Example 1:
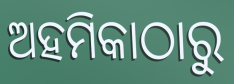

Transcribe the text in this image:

ଅହମିକାଠାରୁ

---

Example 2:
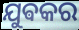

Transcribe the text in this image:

ଯୁଵକର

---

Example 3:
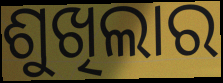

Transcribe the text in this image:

ଶୁଖିଲାର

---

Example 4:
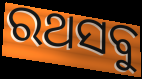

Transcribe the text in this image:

ରଥସବୁ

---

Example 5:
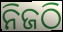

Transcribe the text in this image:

ନିଜଠି